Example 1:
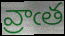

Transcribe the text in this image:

వ్రాఁత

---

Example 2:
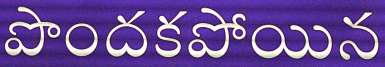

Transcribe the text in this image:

పొందకపోయిన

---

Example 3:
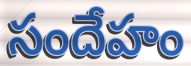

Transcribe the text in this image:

సందేహం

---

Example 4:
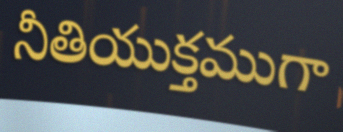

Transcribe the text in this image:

నీతియుక్తముగా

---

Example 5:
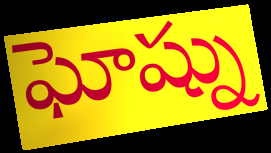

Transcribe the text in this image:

ఘోష్ను